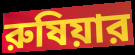
রুষিয়ার